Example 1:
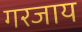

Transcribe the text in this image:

गरजाय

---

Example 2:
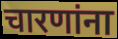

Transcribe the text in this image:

चारणांना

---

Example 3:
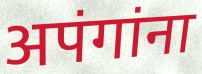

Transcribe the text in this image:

अपंगांना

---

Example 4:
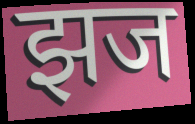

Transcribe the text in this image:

झज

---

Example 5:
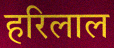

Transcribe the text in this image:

हरिलाल